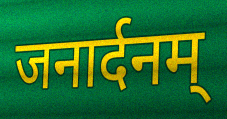
जनार्दनम्